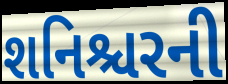
શનિશ્ચરની